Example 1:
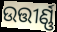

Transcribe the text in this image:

ଉତ୍ତୀର୍ଣ୍ଣ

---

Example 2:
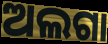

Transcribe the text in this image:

ଅଲଗା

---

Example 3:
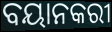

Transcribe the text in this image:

ବୟାନକରୀ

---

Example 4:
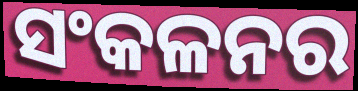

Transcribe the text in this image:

ସଂକଳନର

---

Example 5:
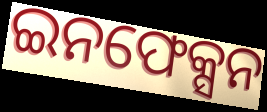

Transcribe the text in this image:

ଇନଫେକ୍ସନ